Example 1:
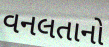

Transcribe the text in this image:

વનલતાનો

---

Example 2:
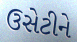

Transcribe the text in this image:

ઉસેટીને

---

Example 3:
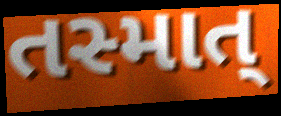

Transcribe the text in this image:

તસ્માત્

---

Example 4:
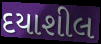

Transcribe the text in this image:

દયાશીલ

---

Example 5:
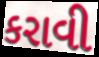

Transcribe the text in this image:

કરાવી